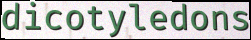
dicotyledons